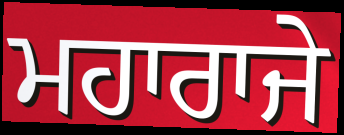
ਮਹਾਰਾਜੇ